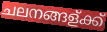
ചലനങ്ങള്ക്ക്